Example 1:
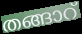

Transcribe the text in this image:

തങ്ങാറ്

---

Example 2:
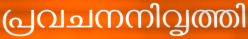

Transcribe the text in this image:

പ്രവചനനിവൃത്തി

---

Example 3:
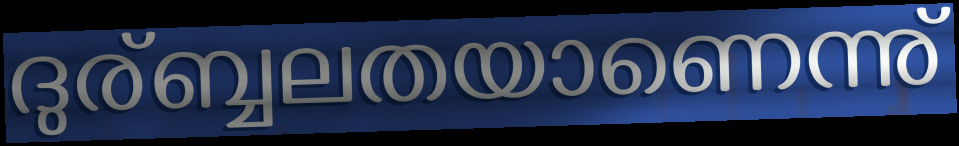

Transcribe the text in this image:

ദുര്ബ്ബലതയാണെന്നു്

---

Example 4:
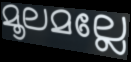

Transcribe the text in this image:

മൂലമല്ലേ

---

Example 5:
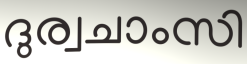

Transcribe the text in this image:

ദുര്വചാംസി